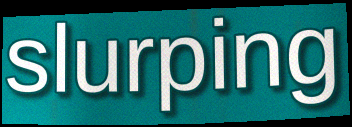
slurping